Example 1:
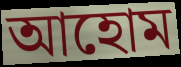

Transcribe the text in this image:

আহোম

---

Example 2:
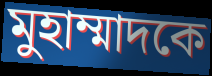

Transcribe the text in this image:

মুহাম্মাদকে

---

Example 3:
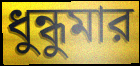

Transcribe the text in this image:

ধুন্ধুমার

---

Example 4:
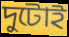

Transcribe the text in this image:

দুটোই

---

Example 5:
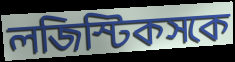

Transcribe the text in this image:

লজিস্টিকসকে